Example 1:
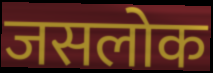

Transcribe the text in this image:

जसलोक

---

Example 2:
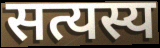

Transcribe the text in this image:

सत्यस्य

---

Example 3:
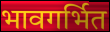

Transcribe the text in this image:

भावगर्भित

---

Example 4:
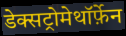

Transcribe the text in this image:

डेक्सट्रोमेथॉर्फ़ेन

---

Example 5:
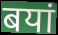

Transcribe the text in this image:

बयां